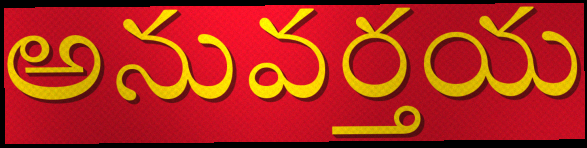
అనువర్తయ